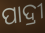
ପାଦ୍ରୀ